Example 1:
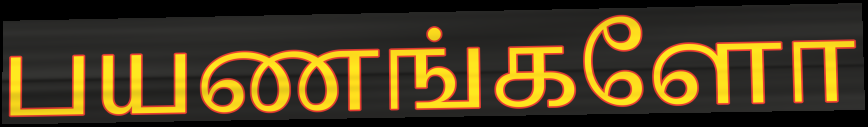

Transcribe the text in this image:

பயணங்களோ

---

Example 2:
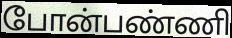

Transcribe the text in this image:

போன்பண்ணி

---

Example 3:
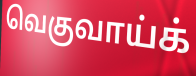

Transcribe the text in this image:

வெகுவாய்க்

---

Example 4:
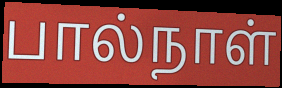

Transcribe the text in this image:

பால்நாள்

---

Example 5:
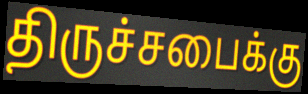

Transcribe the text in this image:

திருச்சபைக்கு